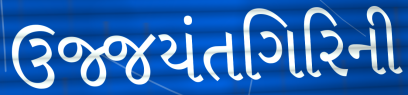
ઉજ્જયંતગિરિની